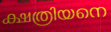
ക്ഷത്രിയനെ